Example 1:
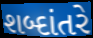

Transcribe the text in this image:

શબ્દાંતરે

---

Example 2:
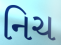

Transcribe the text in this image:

નિચ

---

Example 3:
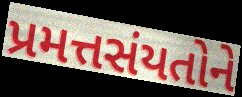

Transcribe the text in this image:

પ્રમત્તસંયતોને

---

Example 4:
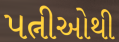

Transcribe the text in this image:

પત્નીઓથી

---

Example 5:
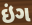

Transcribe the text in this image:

ઇંગ